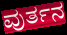
ವುರ್ತನ